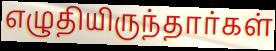
எழுதியிருந்தார்கள்